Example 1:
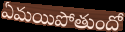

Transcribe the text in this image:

ఏమయిపోతుందో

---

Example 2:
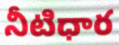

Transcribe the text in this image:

నీటిధార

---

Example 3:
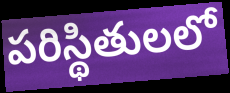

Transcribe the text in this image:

పరిస్థితులలో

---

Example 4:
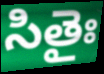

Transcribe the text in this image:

సితైః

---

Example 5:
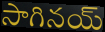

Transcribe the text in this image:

సాగినయ్